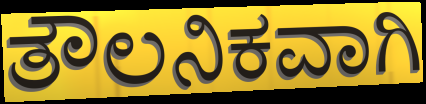
ತೌಲನಿಕವಾಗಿ